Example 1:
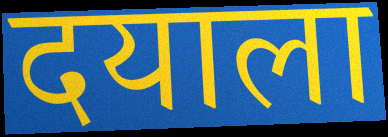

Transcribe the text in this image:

दयाला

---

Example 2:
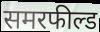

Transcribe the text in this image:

समरफील्ड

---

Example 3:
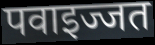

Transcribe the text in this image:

पवाइज्जत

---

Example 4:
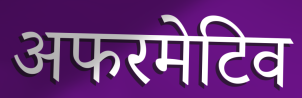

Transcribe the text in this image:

अफरमेटिव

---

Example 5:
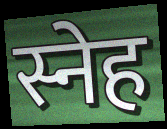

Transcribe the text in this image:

स्नेह